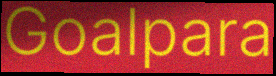
Goalpara